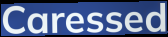
Caressed